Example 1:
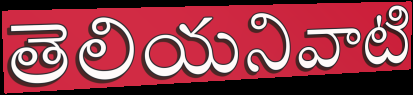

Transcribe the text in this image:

తెలియనివాటి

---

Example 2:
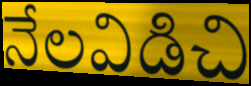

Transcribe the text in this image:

నేలవిడిచి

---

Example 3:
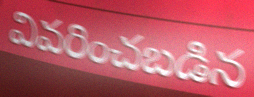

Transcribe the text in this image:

వివరించబడిన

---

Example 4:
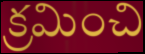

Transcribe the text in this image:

క్రమించి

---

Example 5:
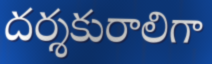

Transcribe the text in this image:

దర్శకురాలిగా